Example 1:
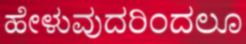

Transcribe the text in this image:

ಹೇಳುವುದರಿಂದಲೂ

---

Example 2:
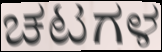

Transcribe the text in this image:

ಚಟಗಳ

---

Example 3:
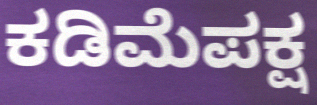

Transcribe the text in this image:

ಕಡಿಮೆಪಕ್ಷ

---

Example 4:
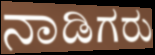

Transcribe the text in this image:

ನಾಡಿಗರು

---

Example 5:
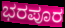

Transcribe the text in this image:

ಭರಪೂರ